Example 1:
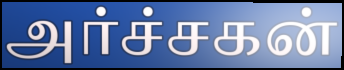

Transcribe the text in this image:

அர்ச்சகன்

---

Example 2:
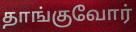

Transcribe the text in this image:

தாங்குவோர்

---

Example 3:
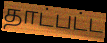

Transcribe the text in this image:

தாட்பட்ட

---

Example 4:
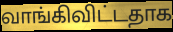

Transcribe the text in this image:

வாங்கிவிட்டதாக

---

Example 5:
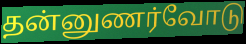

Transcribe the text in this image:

தன்னுணர்வோடு